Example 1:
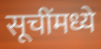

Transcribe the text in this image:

सूचींमध्ये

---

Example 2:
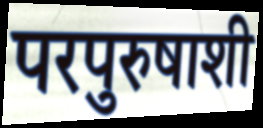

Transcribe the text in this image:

परपुरुषाशी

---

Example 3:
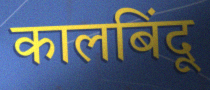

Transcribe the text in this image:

कालबिंदू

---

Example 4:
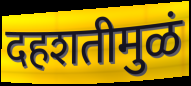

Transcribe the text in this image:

दहशतीमुळं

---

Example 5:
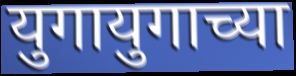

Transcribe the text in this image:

युगायुगाच्या